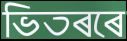
ভিতৰৰে